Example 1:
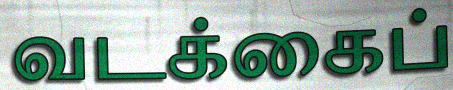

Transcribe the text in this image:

வடக்கைப்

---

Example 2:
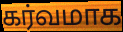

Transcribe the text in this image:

கர்வமாக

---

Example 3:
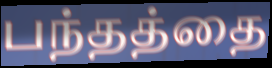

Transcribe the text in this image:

பந்தத்தை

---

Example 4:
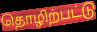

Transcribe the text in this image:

தொழிற்பட்டு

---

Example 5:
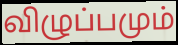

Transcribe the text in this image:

விழுப்பமும்